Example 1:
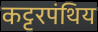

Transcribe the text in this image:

कट्टरपंथिय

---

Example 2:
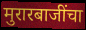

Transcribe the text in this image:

मुरारबाजींचा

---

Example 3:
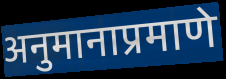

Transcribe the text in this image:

अनुमानाप्रमाणे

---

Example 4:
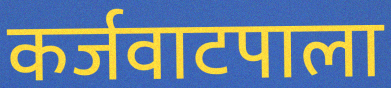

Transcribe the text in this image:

कर्जवाटपाला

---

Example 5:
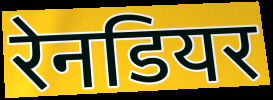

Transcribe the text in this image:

रेनडियर